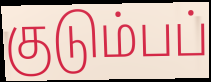
குடும்பப்